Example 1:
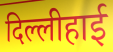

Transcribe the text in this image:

दिल्लीहाई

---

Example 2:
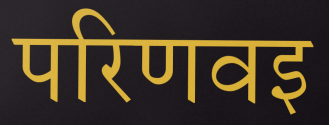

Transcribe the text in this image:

परिणवइ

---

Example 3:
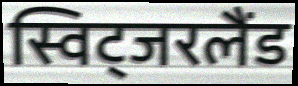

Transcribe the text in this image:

स्विट्जरलैंड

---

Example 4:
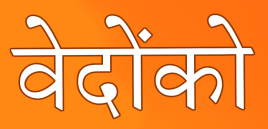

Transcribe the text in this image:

वेदोंको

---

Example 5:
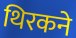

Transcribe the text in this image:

थिरकने